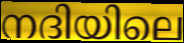
നദിയിലെ